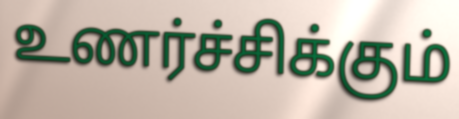
உணர்ச்சிக்கும்